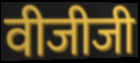
वीजीजी